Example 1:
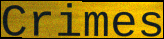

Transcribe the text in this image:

Crimes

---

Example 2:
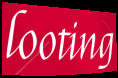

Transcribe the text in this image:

looting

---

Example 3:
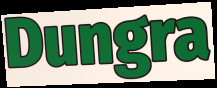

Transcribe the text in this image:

Dungra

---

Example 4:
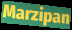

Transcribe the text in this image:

Marzipan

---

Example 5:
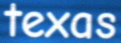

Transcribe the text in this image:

texas